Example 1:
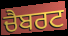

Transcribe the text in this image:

ਚੈਬਰਟ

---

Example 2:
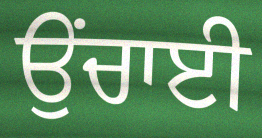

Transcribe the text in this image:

ਉਂਚਾਈ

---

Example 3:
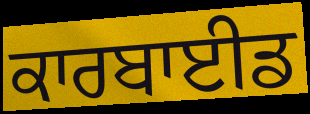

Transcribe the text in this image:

ਕਾਰਬਾਈਡ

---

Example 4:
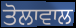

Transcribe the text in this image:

ਤੋਲਾਵਾਲ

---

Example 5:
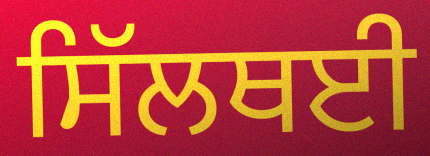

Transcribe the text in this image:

ਸਿੱਲਥਈ